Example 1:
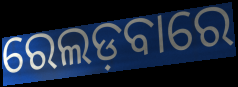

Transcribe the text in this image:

ରେଲଡ଼ବାରେ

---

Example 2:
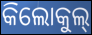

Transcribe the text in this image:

କିଲୋକୁଲ୍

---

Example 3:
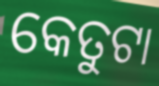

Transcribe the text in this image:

କେତୁଟା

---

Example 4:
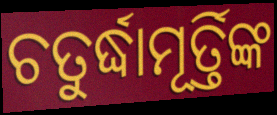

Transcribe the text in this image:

ଚତୁର୍ଦ୍ଧାମୂର୍ତ୍ତିଙ୍କ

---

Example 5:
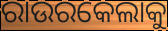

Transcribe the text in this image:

ରାଉରକେଲାକୁ